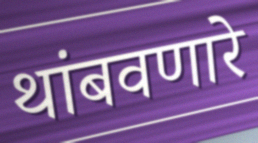
थांबवणारे